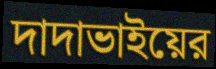
দাদাভাইয়ের